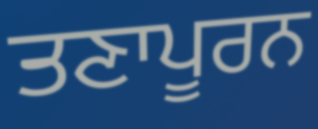
ਤਣਾਪੂਰਨ